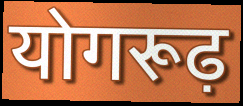
योगरूढ़